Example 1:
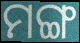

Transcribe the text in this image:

ମଙ୍ଗ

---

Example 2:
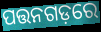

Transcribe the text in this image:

ପତ୍ତନଗଡ଼ରେ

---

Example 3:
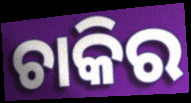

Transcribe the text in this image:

ଚାକିର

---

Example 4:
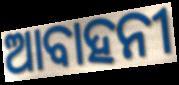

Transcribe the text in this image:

ଆବାହନୀ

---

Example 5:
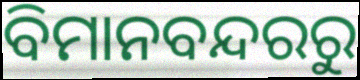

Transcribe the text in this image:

ବିମାନବନ୍ଦରରୁ